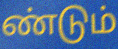
ண்டும்